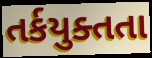
તર્કયુક્તતા